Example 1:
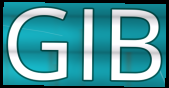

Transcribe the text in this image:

GIB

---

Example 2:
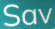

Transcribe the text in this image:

Sav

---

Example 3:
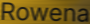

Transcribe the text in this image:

Rowena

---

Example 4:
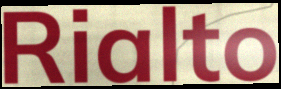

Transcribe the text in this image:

Rialto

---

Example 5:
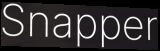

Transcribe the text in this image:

Snapper